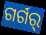
ଗର୍ଗର୍